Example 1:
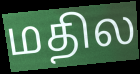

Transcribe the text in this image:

மதில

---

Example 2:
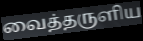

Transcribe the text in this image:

வைத்தருளிய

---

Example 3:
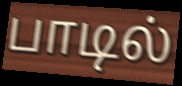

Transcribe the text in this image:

பாடில்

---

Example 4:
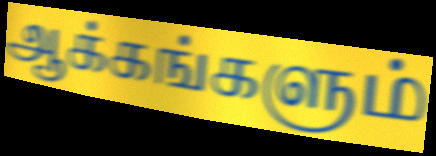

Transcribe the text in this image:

ஆக்கங்களும்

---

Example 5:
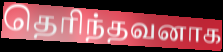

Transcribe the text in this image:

தெரிந்தவனாக